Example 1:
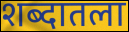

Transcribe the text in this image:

शब्दातला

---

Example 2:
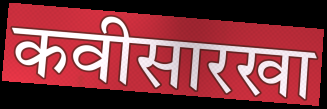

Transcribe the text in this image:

कवीसारखा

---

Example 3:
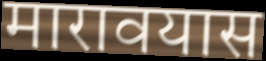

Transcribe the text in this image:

मारावयास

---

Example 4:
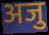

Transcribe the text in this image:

अजु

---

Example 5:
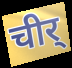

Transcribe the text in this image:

चीर्